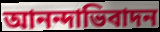
আনন্দাভিবাদন